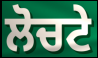
ਲੋਚਟੇ